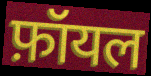
फ़ॉयल